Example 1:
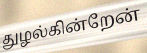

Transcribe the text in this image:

துழல்கின்றேன்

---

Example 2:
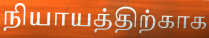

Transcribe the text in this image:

நியாயத்திற்காக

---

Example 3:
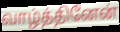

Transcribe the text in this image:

வாழ்த்தினேன்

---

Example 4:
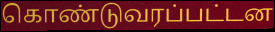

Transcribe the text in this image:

கொண்டுவரப்பட்டன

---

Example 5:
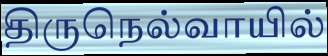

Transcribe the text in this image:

திருநெல்வாயில்